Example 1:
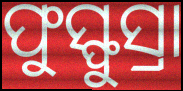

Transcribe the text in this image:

ଫୁସ୍ଫୁସ୍ରା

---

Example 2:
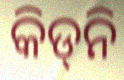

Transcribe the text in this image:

କିଡ୍‌ନି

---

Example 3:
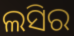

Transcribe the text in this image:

ଲସିର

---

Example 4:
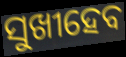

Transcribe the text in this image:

ସୁଖୀହେବ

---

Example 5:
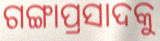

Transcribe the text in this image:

ଗଙ୍ଗାପ୍ରସାଦକୁ